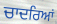
ਚਾਦਰਿਆਂ